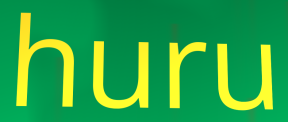
huru